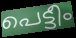
പെട്ടീം